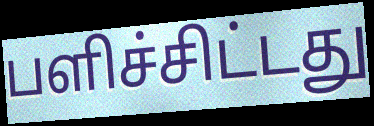
பளிச்சிட்டது